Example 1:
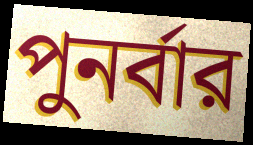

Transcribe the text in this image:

পুনর্বার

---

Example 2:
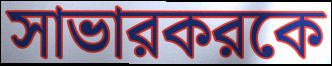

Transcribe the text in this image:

সাভারকরকে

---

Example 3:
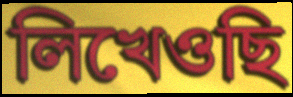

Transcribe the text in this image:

লিখেওছি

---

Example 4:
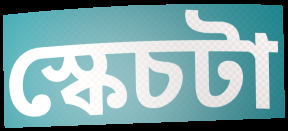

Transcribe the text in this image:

স্কেচটা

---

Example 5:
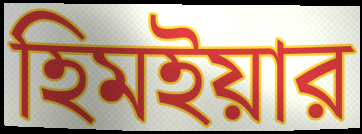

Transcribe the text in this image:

হিমইয়ার